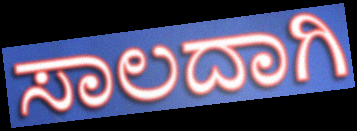
ಸಾಲದಾಗಿ